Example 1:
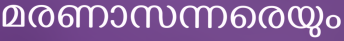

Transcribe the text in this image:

മരണാസന്നരെയും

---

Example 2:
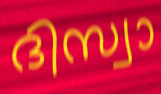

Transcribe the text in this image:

ദിസ്വാ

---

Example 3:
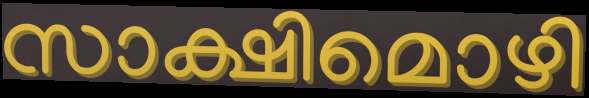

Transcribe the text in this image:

സാക്ഷിമൊഴി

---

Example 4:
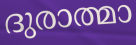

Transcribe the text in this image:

ദുരാത്മാ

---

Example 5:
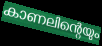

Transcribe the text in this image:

കാണലിന്റെയും